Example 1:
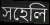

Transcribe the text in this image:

সহেলি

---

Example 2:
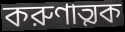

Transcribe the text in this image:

করুণাত্মক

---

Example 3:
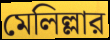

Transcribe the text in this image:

মেলিল্লার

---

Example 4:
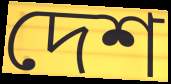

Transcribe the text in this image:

দেশ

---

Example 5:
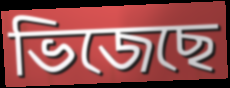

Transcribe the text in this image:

ভিজেছে